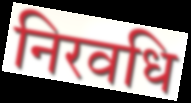
निरवधि